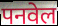
पनवेल